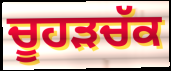
ਚੂਹਡ਼ਚੱਕ